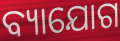
ବ୍ୟାଯୋଗ